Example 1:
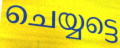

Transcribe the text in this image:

ചെയ്യട്ടെ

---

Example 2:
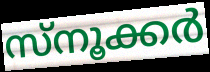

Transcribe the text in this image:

സ്നൂക്കർ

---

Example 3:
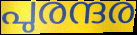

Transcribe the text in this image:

പുരന്ദര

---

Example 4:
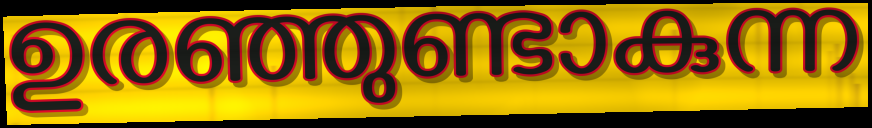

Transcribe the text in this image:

ഉരഞ്ഞുണ്ടാകുന്ന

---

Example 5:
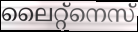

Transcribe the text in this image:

ലൈറ്റ്നെസ്